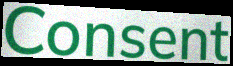
Consent